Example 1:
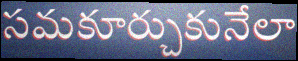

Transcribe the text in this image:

సమకూర్చుకునేలా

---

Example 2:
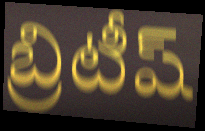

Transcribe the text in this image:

బ్రిటీష్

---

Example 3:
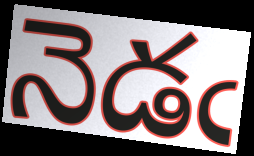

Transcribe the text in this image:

నెడఁ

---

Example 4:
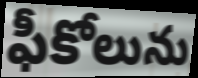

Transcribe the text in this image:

ఫీకోలును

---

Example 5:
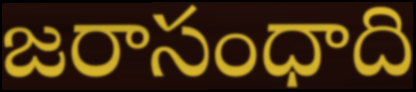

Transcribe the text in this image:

జరాసంధాది